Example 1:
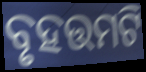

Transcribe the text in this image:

ବୃହତ୍ତମଟି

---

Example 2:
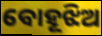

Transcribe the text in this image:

ବୋହୂଝିଅ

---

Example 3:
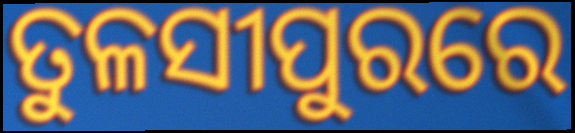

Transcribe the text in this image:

ତୁଳସୀପୁରରେ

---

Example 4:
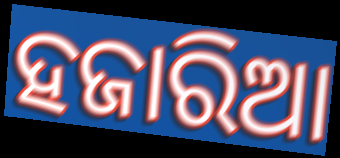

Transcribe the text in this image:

ହଜାରିଆ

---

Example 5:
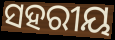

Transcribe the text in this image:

ସହରୀୟ